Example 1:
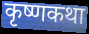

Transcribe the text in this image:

कृष्णकथा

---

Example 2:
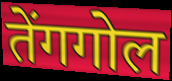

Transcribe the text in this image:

तेंगगोल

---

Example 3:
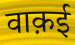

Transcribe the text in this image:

वाक़ई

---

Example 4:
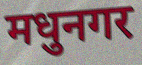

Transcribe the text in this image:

मधुनगर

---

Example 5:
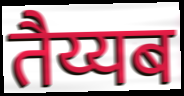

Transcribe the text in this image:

तैय्यब